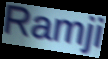
Ramji